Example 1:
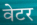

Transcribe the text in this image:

वेटर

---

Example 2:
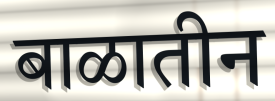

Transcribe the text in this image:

बाळातीन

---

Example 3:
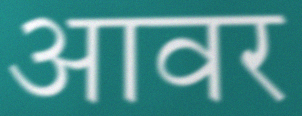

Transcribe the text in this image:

आवर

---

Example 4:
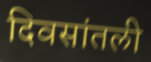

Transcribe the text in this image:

दिवसांतली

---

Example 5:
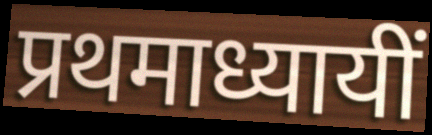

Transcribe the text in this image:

प्रथमाध्यायीं